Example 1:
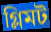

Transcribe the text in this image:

গ্লিমট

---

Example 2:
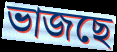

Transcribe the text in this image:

ভাজছে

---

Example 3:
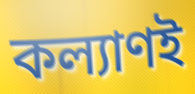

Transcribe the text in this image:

কল্যাণই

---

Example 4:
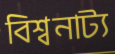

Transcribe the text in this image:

বিশ্বনাট্য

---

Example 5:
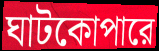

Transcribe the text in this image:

ঘাটকোপারে